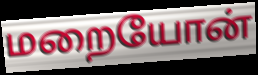
மறையோன்